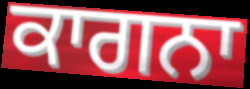
ਕਾਗਨਾ